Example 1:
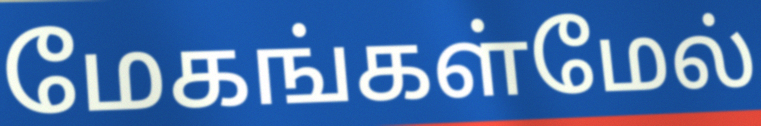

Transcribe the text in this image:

மேகங்கள்மேல்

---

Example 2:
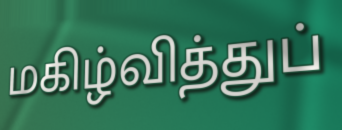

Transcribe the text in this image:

மகிழ்வித்துப்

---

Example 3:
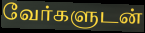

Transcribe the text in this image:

வேர்களுடன்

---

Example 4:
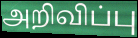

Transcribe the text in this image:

அறிவிப்பு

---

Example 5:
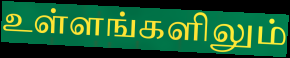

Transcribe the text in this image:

உள்ளங்களிலும்